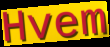
Hvem